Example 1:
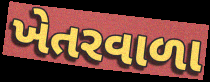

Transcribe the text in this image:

ખેતરવાળા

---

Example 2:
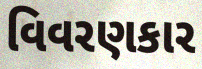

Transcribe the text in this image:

વિવરણકાર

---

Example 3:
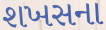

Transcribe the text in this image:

શખસના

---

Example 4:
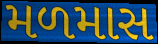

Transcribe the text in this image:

મળમાસ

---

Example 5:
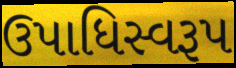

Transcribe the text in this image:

ઉપાધિસ્વરૂપ